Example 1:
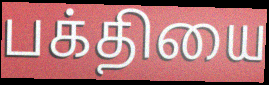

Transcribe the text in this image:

பக்தியை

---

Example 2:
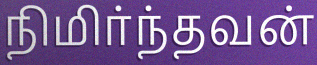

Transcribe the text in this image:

நிமிர்ந்தவன்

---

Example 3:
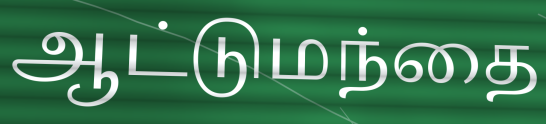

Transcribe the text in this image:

ஆட்டுமந்தை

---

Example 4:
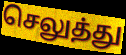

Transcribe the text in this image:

செலுத்து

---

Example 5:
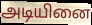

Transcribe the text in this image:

அடியினை